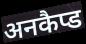
अनकैप्ड